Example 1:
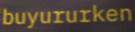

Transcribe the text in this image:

buyururken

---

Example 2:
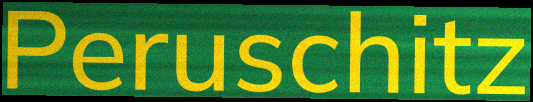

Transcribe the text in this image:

Peruschitz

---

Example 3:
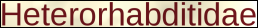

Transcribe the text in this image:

Heterorhabditidae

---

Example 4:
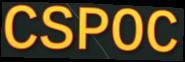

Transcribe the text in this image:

CSPOC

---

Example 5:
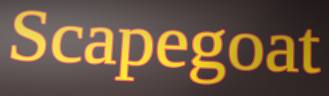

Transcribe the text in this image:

Scapegoat